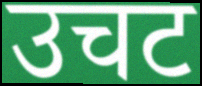
उचट